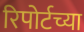
रिपोर्टच्या